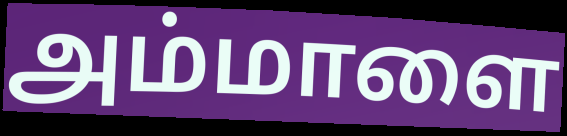
அம்மாளை